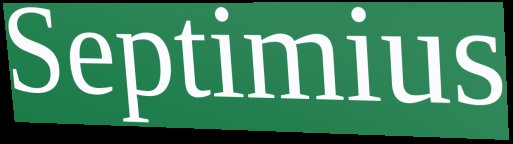
Septimius